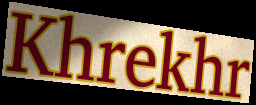
Khrekhr